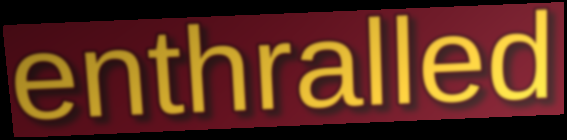
enthralled